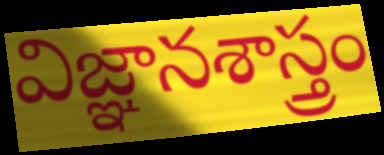
విజ్ఞానశాస్త్రం